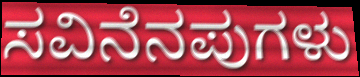
ಸವಿನೆನಪುಗಳು